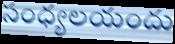
సంధ్యలయందు